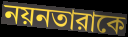
নয়নতারাকে